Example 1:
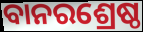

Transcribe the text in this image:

ବାନରଶ୍ରେଷ୍ଠ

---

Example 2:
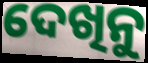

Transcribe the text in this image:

ଦେଖିନୁ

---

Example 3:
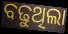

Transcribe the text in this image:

ବଢୁଥିଲା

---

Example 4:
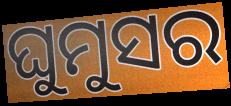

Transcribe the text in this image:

ଘୁମୁସର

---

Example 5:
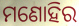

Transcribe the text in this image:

ମଣୋହିର